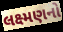
લક્ષ્મણનો